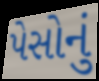
પેસોનું